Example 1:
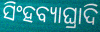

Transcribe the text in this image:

ସିଂହବ୍ୟାଘ୍ରାଦି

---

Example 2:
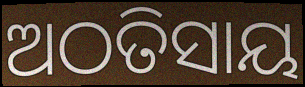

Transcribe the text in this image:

ଅଠତିସାୟ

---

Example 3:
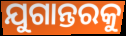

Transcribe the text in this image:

ଯୁଗାନ୍ତରକୁ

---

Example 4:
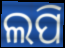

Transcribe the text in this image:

ଲପି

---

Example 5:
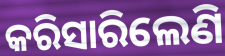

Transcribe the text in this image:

କରିସାରିଲେଣି